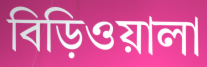
বিড়িওয়ালা